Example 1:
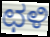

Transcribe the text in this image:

ಛಳಿ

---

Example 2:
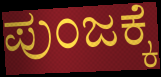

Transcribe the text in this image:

ಪುಂಜಕ್ಕೆ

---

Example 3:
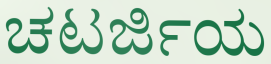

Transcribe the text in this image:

ಚಟರ್ಜಿಯ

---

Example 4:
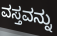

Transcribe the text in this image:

ವಸ್ತವನ್ನು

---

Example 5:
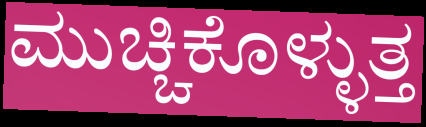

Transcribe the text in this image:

ಮುಚ್ಚಿಕೊಳ್ಳುತ್ತ